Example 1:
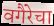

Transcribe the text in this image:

वगैरेचा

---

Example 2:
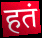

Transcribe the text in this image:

हतं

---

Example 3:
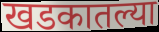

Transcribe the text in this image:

खडकातल्या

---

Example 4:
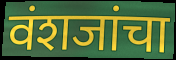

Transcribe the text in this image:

वंशजांचा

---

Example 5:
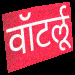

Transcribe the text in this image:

वॉटर्लू